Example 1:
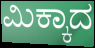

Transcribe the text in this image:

ಮಿಕ್ಕಾದ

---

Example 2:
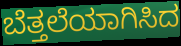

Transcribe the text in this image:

ಬೆತ್ತಲೆಯಾಗಿಸಿದ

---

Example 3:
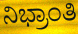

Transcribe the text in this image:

ನಿಭ್ರಾಂತಿ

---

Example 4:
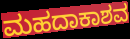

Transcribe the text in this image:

ಮಹದಾಕಾಶವ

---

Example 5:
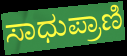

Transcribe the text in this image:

ಸಾಧುಪ್ರಾಣಿ